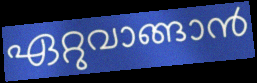
ഏറ്റുവാങ്ങാൻ